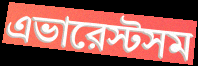
এভারেস্টসম